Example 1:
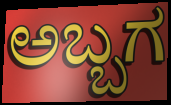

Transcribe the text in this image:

ಅಬ್ಬಗ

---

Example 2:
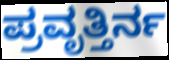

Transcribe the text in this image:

ಪ್ರವೃತ್ತಿರ್ನ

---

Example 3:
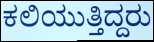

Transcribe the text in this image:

ಕಲಿಯುತ್ತಿದ್ದರು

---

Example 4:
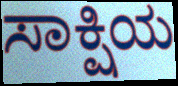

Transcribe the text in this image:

ಸಾಕ್ಷಿಯ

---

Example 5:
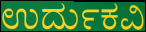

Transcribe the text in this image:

ಉರ್ದುಕವಿ